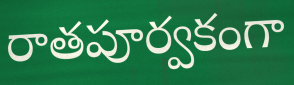
రాతపూర్వకంగా